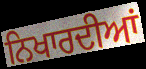
ਨਿਖਾਰਦੀਆਂ